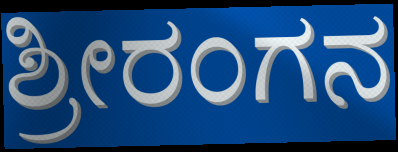
ಶ್ರೀರಂಗನ